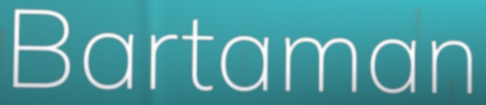
Bartaman